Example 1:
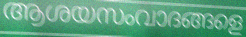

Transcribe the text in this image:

ആശയസംവാദങ്ങളെ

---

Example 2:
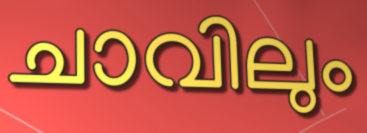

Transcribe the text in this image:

ചാവിലും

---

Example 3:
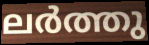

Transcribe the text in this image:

ലർത്തു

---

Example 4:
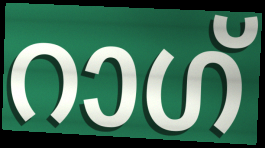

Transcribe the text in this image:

റാഗ്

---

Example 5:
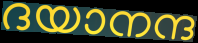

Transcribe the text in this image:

ദയാനന്ദ